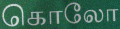
கொலோ